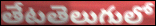
తేటతెలుగులో